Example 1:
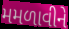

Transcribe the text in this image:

મમળાવીને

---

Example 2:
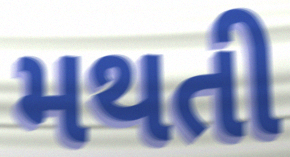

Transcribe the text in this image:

મથતી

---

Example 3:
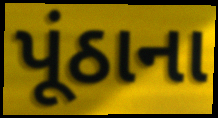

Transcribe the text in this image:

પૂંઠાના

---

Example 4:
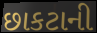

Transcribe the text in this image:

છાકટાની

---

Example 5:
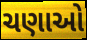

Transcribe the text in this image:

ચણાઓ